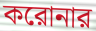
করোনার